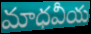
మాధవీయ